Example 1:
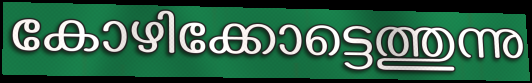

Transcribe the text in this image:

കോഴിക്കോട്ടെത്തുന്നു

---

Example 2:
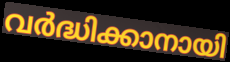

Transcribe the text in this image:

വർദ്ധിക്കാനായി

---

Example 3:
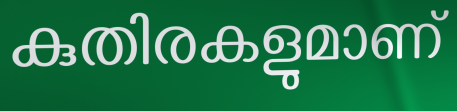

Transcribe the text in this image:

കുതിരകളുമാണ്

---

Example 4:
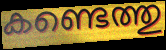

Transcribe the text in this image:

കണ്ടെത്തു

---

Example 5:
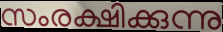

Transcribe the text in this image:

സംരക്ഷിക്കുന്നു